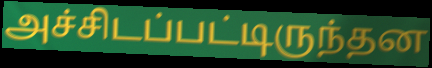
அச்சிடப்பட்டிருந்தன